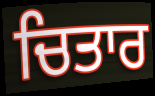
ਚਿਤਾਰ